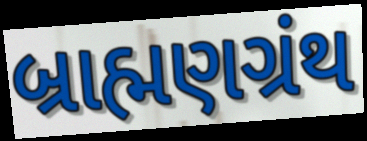
બ્રાહ્મણગ્રંથ